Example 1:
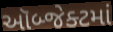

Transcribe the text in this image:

ઑબ્જેક્ટમાં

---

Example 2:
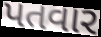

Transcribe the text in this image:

પતવાર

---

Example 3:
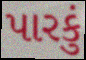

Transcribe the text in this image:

પારકું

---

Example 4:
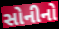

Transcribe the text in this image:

સોનીનો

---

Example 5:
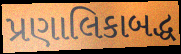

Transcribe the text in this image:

પ્રણાલિકાબદ્ધ